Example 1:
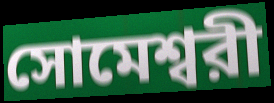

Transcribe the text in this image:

সোমেশ্বরী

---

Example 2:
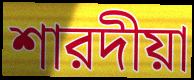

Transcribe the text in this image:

শারদীয়া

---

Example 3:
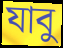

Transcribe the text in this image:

যাবু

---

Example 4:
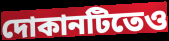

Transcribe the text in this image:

দোকানটিতেও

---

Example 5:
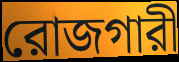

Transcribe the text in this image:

রোজগারী